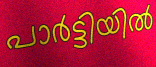
പാർട്ടിയിൽ